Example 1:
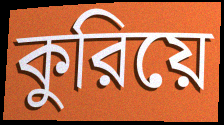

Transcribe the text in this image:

কুরিয়ে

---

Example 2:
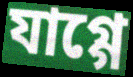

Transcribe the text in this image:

যাগ্গে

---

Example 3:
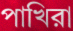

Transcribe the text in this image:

পাখিরা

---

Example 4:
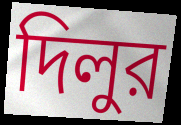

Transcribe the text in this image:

দিলুর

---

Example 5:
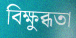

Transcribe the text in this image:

বিক্ষুব্ধতা